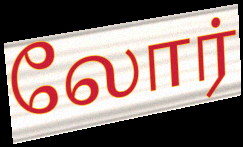
லோர்